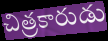
చిత్రకారుడు